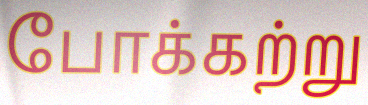
போக்கற்று